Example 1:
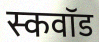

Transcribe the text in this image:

स्कवॉड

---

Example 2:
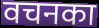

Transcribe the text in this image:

वचनका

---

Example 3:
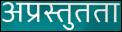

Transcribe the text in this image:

अप्रस्तुतता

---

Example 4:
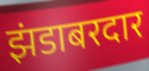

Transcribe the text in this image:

झंडाबरदार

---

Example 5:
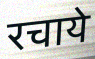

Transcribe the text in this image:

रचाये